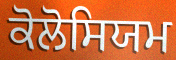
ਕੋਲੋਸਿਯਮ